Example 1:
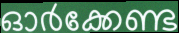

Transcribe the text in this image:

ഓർക്കേണ്ട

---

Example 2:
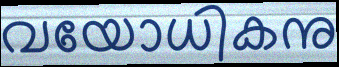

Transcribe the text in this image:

വയോധികനു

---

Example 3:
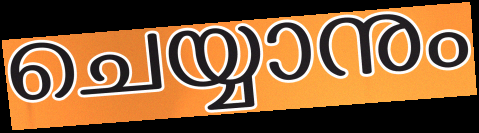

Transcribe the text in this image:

ചെയ്യാനും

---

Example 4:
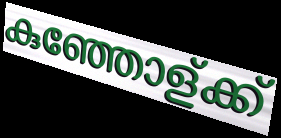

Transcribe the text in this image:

കുഞ്ഞോള്ക്ക്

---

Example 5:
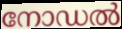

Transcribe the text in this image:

നോഡൽ